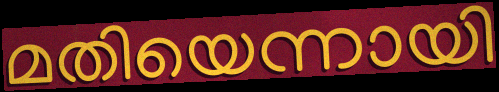
മതിയെന്നായി